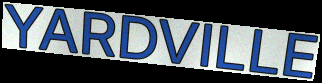
YARDVILLE